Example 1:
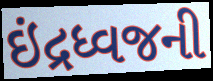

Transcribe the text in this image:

ઇંદ્રધ્વજની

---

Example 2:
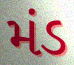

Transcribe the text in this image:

મંડ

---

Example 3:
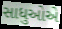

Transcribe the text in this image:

સાધુઓએ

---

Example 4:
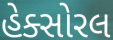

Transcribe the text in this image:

હેક્સોરલ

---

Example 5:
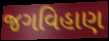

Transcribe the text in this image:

જગવિહાણ